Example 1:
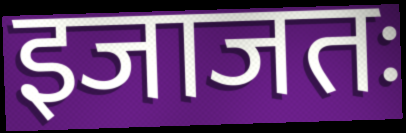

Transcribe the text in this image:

इजाजतः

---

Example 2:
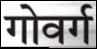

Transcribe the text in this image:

गोवर्ग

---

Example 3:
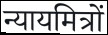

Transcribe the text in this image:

न्यायमित्रों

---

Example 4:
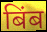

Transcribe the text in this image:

बिंब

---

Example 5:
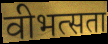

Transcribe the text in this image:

वीभत्सता